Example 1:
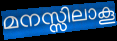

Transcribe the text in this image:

മനസ്സിലാകൂ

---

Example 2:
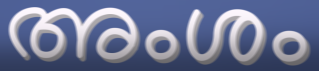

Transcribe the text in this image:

അംശം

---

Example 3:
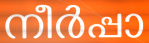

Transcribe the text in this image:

നീർപ്പാ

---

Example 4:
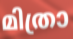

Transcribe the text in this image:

മിത്രാ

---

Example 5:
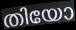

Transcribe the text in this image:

തിയോ